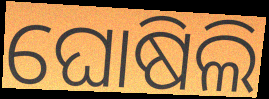
ଘୋଷିଲି